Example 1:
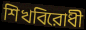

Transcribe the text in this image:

শিখবিরোধী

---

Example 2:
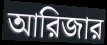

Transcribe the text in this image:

আরিজার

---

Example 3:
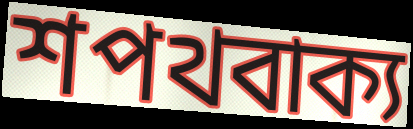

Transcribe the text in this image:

শপথবাক্য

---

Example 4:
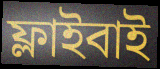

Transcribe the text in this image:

ফ্লাইবাই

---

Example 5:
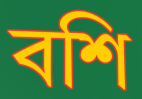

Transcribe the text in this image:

বশি